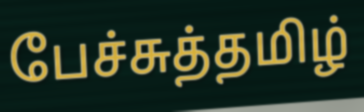
பேச்சுத்தமிழ்